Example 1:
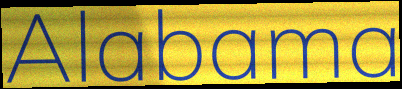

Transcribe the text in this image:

Alabama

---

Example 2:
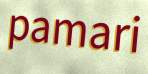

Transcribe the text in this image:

pamari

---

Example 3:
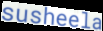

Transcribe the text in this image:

susheela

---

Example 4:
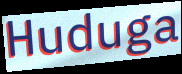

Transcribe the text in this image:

Huduga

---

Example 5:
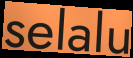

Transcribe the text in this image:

selalu